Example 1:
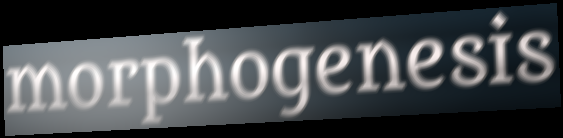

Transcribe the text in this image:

morphogenesis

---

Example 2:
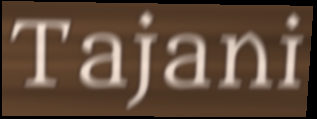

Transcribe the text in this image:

Tajani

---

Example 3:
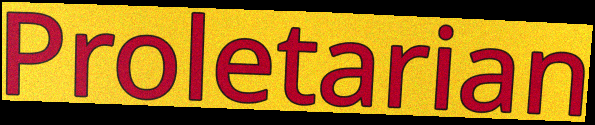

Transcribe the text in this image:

Proletarian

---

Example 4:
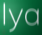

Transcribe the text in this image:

Iya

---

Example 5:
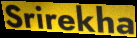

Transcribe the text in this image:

Srirekha